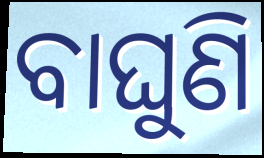
ବାଘୁଣି